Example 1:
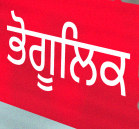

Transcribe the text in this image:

ਭੋਗੂਲਿਕ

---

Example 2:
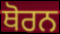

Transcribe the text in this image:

ਥੋਰਨ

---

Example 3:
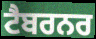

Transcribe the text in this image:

ਟੈਬਰਨਰ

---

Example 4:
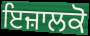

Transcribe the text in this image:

ਇਜ਼ਾਲਕੋ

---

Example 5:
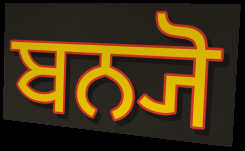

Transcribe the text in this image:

ਬਨ੍ਯੋ